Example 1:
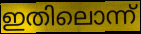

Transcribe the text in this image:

ഇതിലൊന്ന്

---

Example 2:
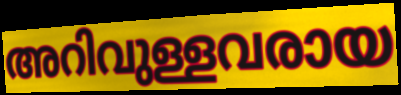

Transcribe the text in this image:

അറിവുള്ളവരായ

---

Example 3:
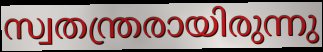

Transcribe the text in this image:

സ്വതന്ത്രരായിരുന്നു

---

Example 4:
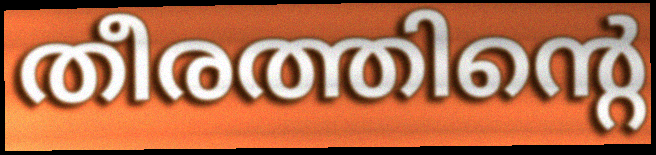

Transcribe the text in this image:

തീരത്തിന്റെ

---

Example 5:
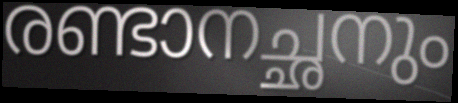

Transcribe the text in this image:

രണ്ടാനച്ഛനും